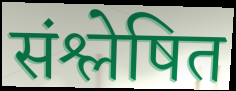
संश्लेषित